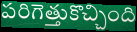
పరిగెత్తుకొచ్చింది